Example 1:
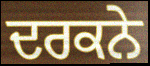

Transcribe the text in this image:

ਦਰਕਨੇ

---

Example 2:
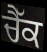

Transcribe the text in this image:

ਚੈੱਕ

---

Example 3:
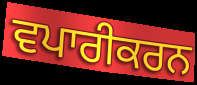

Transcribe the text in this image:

ਵਪਾਰੀਕਰਨ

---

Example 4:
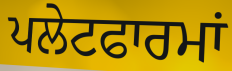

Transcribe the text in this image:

ਪਲੇਟਫਾਰਮਾਂ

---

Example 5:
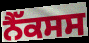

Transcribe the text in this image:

ਨੈੱਕਸਸ